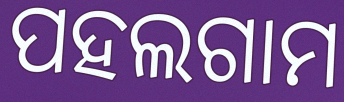
ପହଲଗାମ